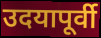
उदयापूर्वी